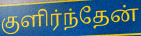
குளிர்ந்தேன்